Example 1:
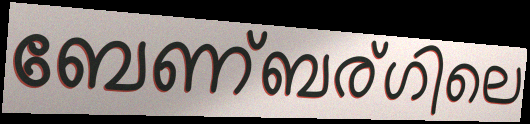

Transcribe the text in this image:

ബേണ്ബര്ഗിലെ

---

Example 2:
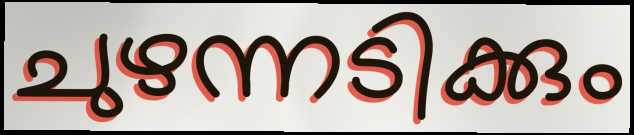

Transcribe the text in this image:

ചുഴന്നടിക്കും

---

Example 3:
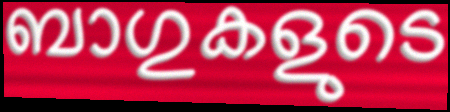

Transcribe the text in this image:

ബാഗുകളുടെ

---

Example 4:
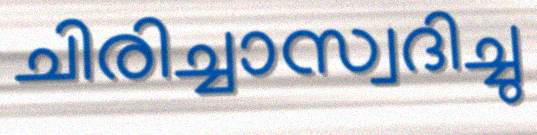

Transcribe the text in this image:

ചിരിച്ചാസ്വദിച്ചു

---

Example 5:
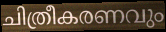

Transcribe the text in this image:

ചിത്രീകരണവും